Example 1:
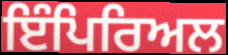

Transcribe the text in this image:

ਇੰਪਿਰਿਅਲ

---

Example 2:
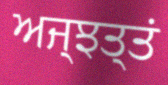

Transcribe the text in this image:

ਅਜ੍ਝਤ੍ਤਂ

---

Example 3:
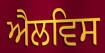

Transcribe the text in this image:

ਐਲਵਿਸ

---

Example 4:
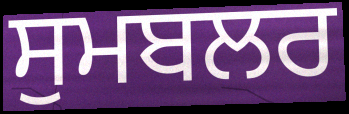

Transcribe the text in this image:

ਸੁਮਬਲਰ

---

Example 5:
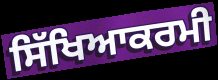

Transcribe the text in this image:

ਸਿੱਖਿਆਕਰਮੀ